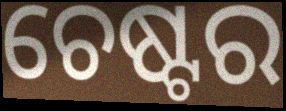
ଚେଷ୍ଟର